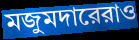
মজুমদারেরাও